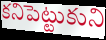
కనిపెట్టుకుని